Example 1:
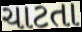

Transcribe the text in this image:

ચાટતા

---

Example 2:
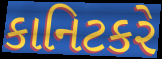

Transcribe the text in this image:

કાનિટકરે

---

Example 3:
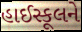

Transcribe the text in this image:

હાઈસ્કૂલને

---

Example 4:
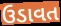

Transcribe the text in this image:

ઉડાવત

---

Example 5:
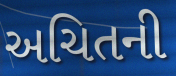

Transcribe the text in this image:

અચિતની